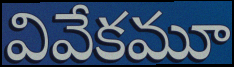
వివేకమూ